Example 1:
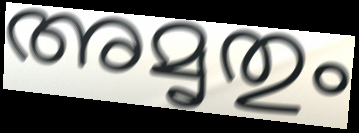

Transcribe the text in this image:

അമൃതും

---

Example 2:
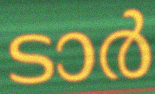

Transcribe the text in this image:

ടാർ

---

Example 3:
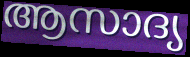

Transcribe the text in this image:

ആസാദ്യ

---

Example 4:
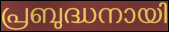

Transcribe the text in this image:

പ്രബുദ്ധനായി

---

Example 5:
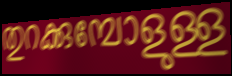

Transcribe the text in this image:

തുറക്കുമ്പോളുള്ള